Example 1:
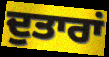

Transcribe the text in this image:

ਦੁਤਾਰਾਂ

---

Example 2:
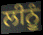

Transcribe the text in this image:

ਲੀਨੂੰ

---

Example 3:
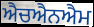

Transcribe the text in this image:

ਐਚਐਨਐਮ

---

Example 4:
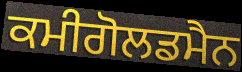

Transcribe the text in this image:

ਕਮੀਗੋਲਡਮੈਨ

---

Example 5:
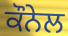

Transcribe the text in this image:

ਕੌਨੇਲ